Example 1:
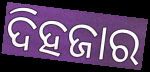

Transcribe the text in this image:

ଦିହଜାର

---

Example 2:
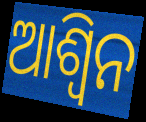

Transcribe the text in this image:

ଆଶ୍ୱିନ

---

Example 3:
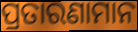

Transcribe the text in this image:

ପ୍ରତାରଣାମାନ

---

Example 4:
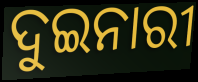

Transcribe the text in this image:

ଦୁଇନାରୀ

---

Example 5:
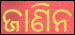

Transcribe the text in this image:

ଜାଣିନ